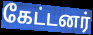
கேட்டனர்